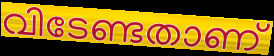
വിടേണ്ടതാണ്